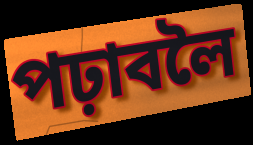
পঢ়াবলৈ